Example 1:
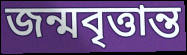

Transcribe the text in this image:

জন্মবৃত্তান্ত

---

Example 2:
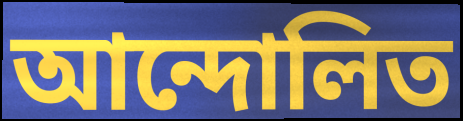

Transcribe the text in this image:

আন্দোলিত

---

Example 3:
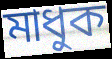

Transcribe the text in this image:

মাধুক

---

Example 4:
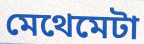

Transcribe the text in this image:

মেথেমেটা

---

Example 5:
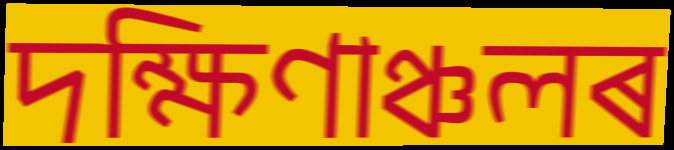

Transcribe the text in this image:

দক্ষিণাঞ্চলৰ